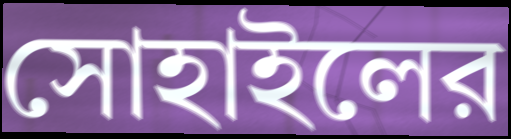
সোহাইলের